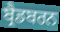
ਬ੍ਰੈਡਬਰਨ